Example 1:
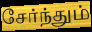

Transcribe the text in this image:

சேர்ந்தும்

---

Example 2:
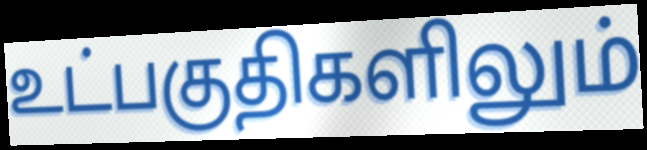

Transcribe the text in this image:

உட்பகுதிகளிலும்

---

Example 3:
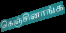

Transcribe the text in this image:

கெஞ்சினாங்க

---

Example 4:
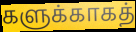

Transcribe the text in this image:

களுக்காகத்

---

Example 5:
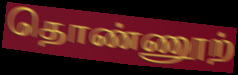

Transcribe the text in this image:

தொண்ணூற்